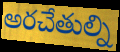
అరచేతుల్ని